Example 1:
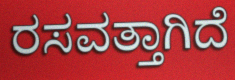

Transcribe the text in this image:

ರಸವತ್ತಾಗಿದೆ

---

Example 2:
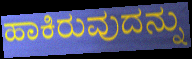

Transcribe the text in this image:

ಹಾಕಿರುವುದನ್ನು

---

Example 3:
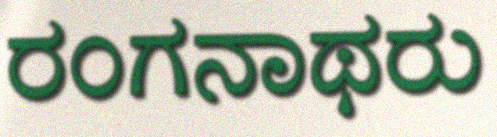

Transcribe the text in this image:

ರಂಗನಾಥರು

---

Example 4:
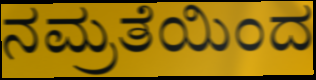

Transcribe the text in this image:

ನಮ್ರತೆಯಿಂದ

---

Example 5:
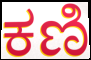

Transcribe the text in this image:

ಕಣಿ